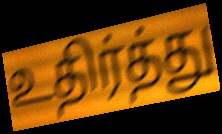
உதிர்த்து